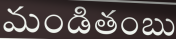
మండితంబు